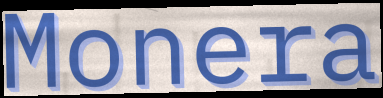
Monera